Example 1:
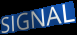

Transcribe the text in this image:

SIGNAL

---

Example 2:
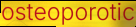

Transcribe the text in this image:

osteoporotic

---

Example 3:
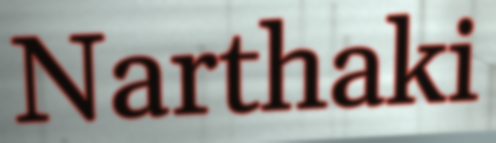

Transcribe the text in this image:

Narthaki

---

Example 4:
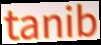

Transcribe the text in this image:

tanib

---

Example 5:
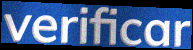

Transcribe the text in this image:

verificar